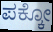
ಪಕ್ಕೋ